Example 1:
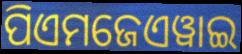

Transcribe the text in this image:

ପିଏମଜେଏୱାଇ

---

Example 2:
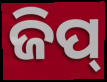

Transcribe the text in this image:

ଜିପ୍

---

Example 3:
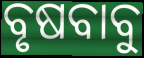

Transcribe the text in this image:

ବୃଷବାବୁ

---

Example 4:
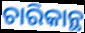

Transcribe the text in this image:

ଚାରିକାନ୍ଥ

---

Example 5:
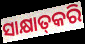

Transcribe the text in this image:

ସାକ୍ଷାତ୍‌କରି